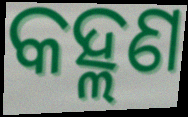
କହ୍ଲଣ